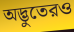
অদ্ভুতেরও